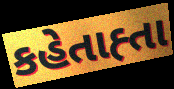
કહેતાહ્તા